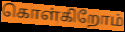
கொள்கிறோம்